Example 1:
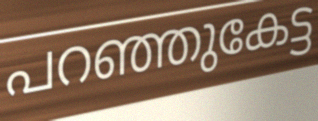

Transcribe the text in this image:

പറഞ്ഞുകേട്ട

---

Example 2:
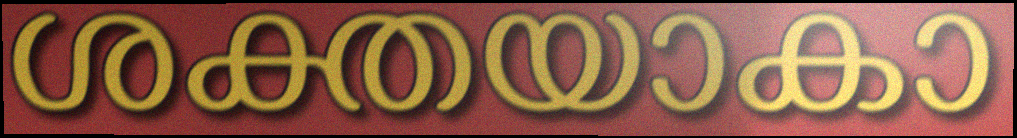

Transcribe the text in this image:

ശക്തയാകാ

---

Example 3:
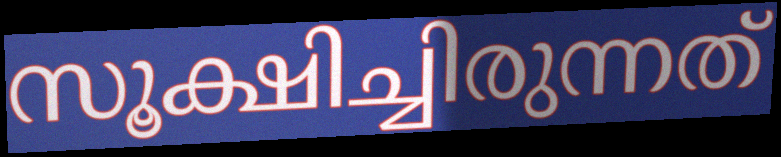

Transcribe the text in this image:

സൂക്ഷിച്ചിരുന്നത്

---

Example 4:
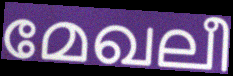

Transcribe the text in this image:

മേഖലീ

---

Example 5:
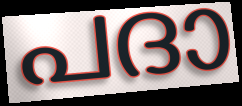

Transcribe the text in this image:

പദാ